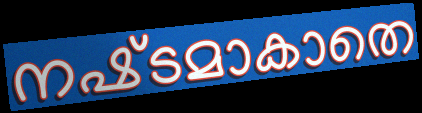
നഷ്‌ടമാകാതെ